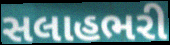
સલાહભરી